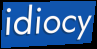
idiocy